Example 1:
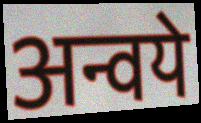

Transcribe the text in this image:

अन्‍वये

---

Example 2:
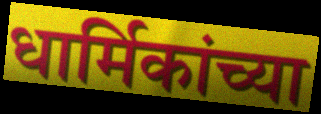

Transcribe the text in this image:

धार्मिकांच्या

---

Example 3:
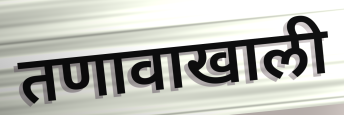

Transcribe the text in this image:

तणावाखाली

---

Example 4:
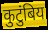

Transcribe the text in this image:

कुटुंबिय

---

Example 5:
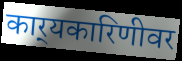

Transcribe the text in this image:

कार्यकारिणीवर